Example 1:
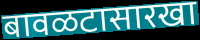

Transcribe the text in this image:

बावळटासारखा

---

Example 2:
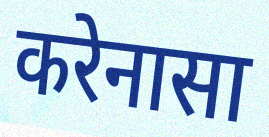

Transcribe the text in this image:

करेनासा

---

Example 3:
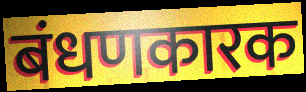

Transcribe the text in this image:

बंधणकारक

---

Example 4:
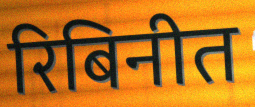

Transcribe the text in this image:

रिबिनीत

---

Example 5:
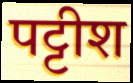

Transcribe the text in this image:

पट्टीश